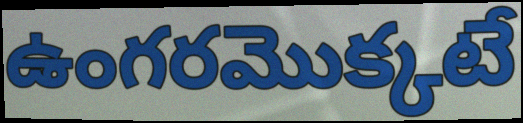
ఉంగరమొక్కటే